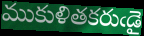
ముకుళితకరుఁడై